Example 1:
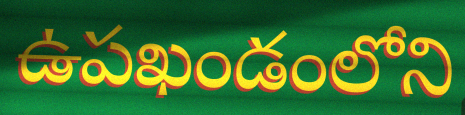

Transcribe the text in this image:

ఉపఖండంలోని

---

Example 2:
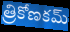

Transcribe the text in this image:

త్రికోణకమ్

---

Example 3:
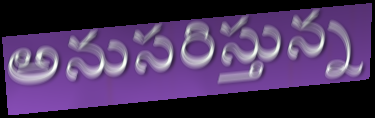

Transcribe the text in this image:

అనుసరిస్తున్న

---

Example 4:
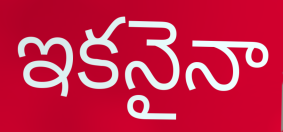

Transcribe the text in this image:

ఇకనైనా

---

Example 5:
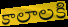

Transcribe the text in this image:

కాలాలకి